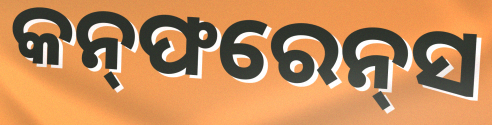
କନ୍‌ଫରେନ୍‌ସ